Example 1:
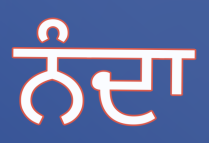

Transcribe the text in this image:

ਨੰਦਾ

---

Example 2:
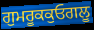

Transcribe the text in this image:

ਗੁਮਰੂਕਕੁਓਗਲੂ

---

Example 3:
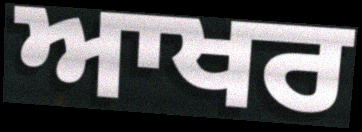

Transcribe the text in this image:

ਆਖਰ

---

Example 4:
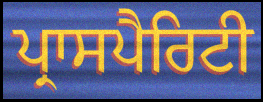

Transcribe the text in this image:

ਪ੍ਰਾਸਪੈਰਿਟੀ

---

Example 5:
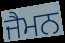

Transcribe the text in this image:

ਜੈਮਨ